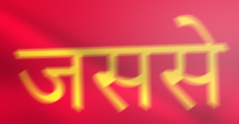
जससे